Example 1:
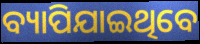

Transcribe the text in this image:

ବ୍ୟାପିଯାଇଥିବେ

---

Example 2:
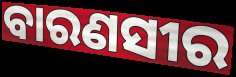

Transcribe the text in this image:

ବାରଣସୀର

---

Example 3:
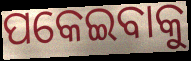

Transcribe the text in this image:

ପକେଇବାକୁ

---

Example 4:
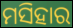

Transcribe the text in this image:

ମସିହାର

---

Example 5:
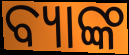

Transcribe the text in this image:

ବ୍ୟାଙ୍କ